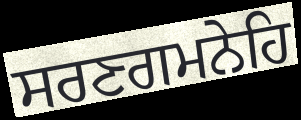
ਸਰਣਗਮਨੇਹਿ